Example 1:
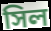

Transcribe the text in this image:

সিল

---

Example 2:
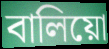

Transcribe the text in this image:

বালিয়ো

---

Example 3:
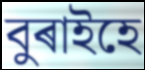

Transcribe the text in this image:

বুৰাইহে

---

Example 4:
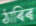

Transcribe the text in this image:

ঠাৰিৰ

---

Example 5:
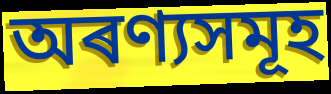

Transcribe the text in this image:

অৰণ্যসমূহ